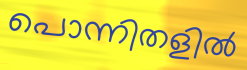
പൊന്നിതളിൽ